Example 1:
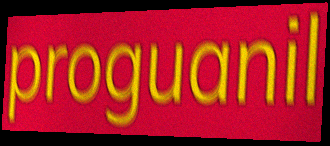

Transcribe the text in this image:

proguanil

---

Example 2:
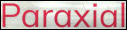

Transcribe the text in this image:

Paraxial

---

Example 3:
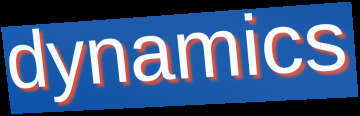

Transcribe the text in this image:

dynamics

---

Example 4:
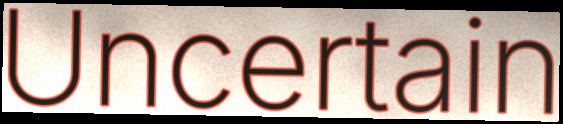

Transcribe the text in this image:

Uncertain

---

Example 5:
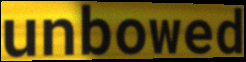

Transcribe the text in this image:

unbowed